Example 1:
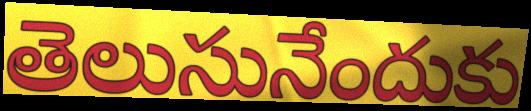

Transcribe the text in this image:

తెలుసునేందుకు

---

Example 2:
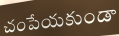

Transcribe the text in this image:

చంపేయకుండా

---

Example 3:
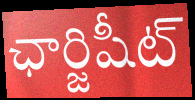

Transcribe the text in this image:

ఛార్జిషీట్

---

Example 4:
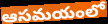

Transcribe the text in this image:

ఆసమయంలో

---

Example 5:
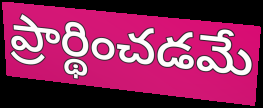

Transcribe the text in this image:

ప్రార్థించడమే